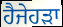
ਹੈਜੇਹੜਾ